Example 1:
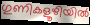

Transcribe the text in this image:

ഗുണികളൂഴിയിൽ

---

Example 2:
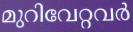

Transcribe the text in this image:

മുറിവേറ്റവർ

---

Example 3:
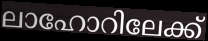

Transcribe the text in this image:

ലാഹോറിലേക്ക്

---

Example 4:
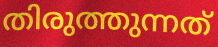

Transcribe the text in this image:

തിരുത്തുന്നത്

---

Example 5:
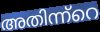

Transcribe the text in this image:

അതിന്ന്റെ